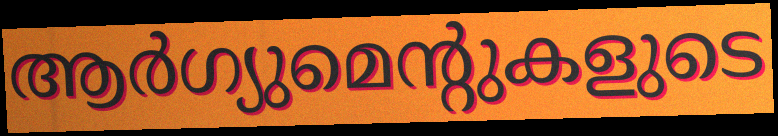
ആർഗ്യുമെന്റുകളുടെ